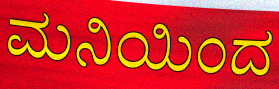
ಮನಿಯಿಂದ